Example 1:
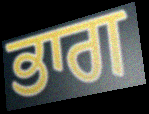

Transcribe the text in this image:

ਭਾਗ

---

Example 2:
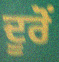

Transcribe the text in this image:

ਦੂਰੋਂ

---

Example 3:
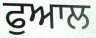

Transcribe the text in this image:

ਫੁਆਲ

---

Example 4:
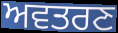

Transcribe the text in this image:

ਅਵਤਰਣ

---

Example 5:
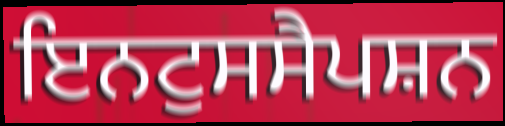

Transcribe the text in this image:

ਇਨਟੁਸਸੈਪਸ਼ਨ